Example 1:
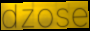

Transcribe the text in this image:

dzose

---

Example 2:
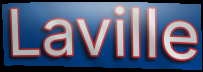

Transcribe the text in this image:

Laville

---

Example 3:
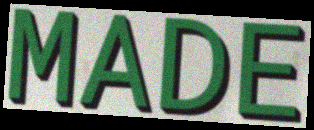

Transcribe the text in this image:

MADE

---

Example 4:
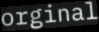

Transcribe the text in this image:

orginal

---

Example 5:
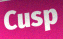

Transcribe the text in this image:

Cusp